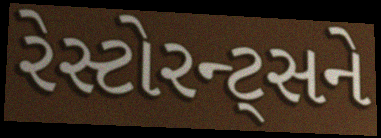
રેસ્ટોરન્ટ્સને